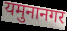
यमुनानगर